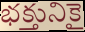
భక్తునికై